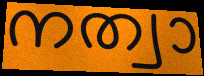
നത്വാ